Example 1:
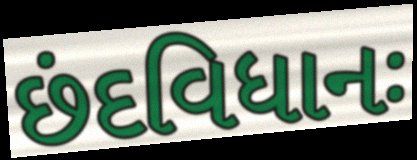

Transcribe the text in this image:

છંદવિધાનઃ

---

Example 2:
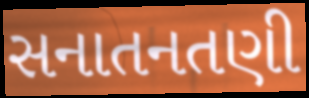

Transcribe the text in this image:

સનાતનતણી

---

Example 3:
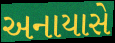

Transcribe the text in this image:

અનાયાસે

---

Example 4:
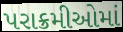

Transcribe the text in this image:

પરાક્રમીઓમાં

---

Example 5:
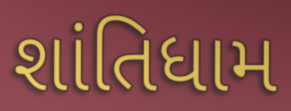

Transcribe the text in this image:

શાંતિધામ